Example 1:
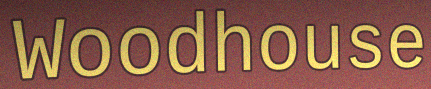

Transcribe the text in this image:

Woodhouse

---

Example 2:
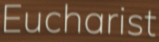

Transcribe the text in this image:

Eucharist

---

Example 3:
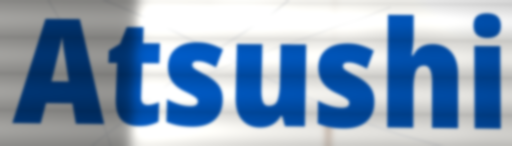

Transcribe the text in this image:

Atsushi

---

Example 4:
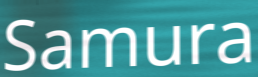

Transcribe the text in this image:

Samura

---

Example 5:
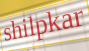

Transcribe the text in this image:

shilpkar